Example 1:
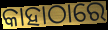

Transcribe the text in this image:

କାହାଠାରେ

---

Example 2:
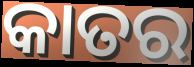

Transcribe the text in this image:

କାତର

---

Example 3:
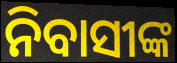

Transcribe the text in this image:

ନିବାସୀଙ୍କ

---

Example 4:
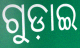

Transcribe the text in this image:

ଗୁଡ଼ାଇ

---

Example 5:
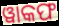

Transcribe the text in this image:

ୱାକଫ